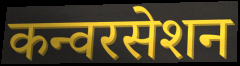
कन्वरसेशन